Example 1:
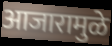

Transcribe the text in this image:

आजारामुळे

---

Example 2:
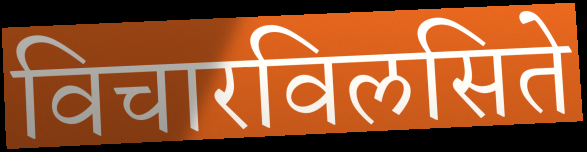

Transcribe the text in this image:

विचारविलसिते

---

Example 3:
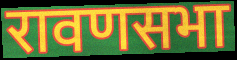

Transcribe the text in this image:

रावणसभा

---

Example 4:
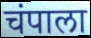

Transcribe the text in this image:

चंपाला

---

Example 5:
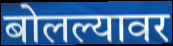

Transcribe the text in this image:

बोलल्यावर